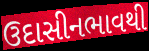
ઉદાસીનભાવથી